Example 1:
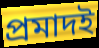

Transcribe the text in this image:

প্রমাদই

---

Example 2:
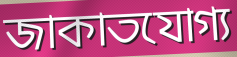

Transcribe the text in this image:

জাকাতযোগ্য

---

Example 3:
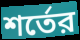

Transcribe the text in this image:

শর্তের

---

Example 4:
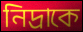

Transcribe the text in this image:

নিদ্রাকে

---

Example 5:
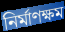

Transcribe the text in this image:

নির্মাণক্ষম